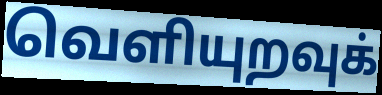
வெளியுறவுக்